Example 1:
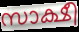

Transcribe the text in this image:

സാക്ഷീ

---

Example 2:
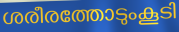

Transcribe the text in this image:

ശരീരത്തോടുംകൂടി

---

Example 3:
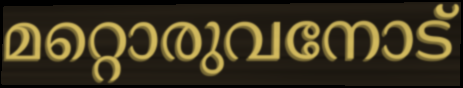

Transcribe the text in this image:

മറ്റൊരുവനോട്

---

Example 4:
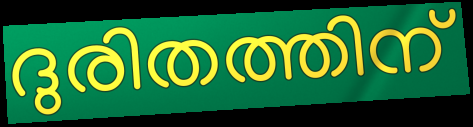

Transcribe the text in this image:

ദുരിതത്തിന്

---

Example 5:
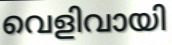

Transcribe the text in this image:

വെളിവായി